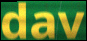
dav